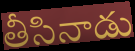
తీసినాడు